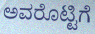
ಅವರೊಟ್ಟಿಗೆ